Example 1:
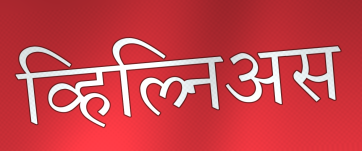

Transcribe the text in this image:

व्हिल्निअस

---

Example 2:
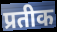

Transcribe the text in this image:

प्रतीक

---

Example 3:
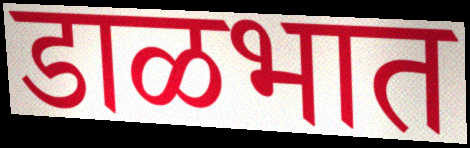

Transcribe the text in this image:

डाळभात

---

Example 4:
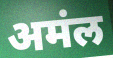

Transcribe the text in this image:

अमंल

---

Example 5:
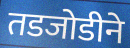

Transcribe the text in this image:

तडजोडीने